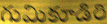
గుమికూడిరి